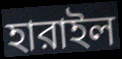
হারাইল